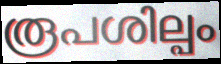
രൂപശില്പം